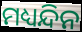
ମଧ୍ୟନ୍ଦିନ